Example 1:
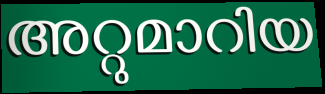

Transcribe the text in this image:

അറ്റുമാറിയ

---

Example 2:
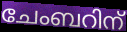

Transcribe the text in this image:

ചേംബറിന്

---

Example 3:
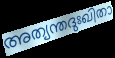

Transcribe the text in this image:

അത്യന്തദുഃഖിതാ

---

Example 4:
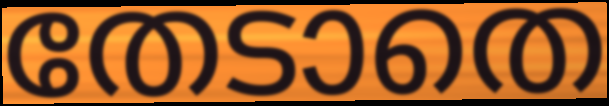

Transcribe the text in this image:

തേടാതെ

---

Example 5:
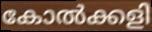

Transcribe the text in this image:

കോൽക്കളി